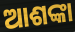
ଆଶଙ୍କା